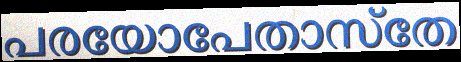
പരയോപേതാസ്തേ